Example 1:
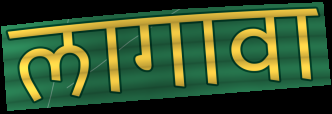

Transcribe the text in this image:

लागावा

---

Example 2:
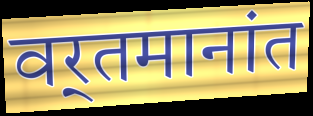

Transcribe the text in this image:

वर्तमानांत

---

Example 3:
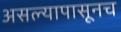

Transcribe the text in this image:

असल्यापासूनच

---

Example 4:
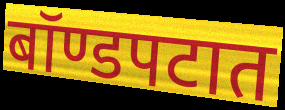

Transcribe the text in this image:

बॉण्डपटात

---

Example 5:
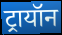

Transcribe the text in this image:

ट्रायॉन